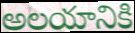
అలయానికి